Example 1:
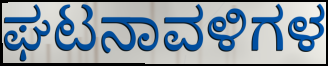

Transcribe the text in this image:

ಘಟನಾವಳಿಗಳ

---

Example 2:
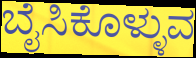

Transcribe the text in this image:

ಬೈಸಿಕೊಳ್ಳುವ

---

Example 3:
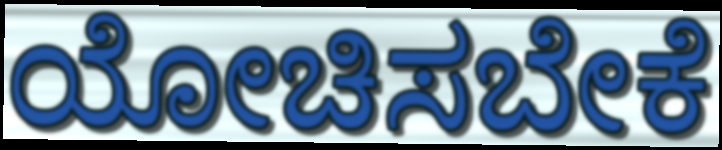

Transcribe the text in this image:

ಯೋಚಿಸಬೇಕೆ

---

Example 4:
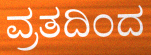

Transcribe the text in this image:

ವ್ರತದಿಂದ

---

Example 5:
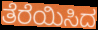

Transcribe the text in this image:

ತೆರೆಯಿಸಿದ